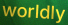
worldly